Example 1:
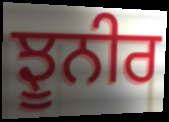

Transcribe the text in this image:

ਝੂਨੀਰ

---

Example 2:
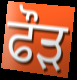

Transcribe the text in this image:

ਫੌਡ਼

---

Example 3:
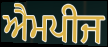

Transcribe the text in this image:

ਐਮਪੀਜ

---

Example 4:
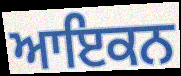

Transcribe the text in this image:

ਆਇਕਨ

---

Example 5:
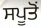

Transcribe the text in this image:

ਸਪੂਤੋਂ